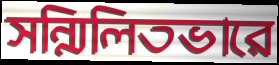
সন্মিলিতভাৱে